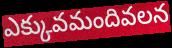
ఎక్కువమందివలన